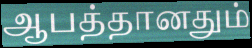
ஆபத்தானதும்